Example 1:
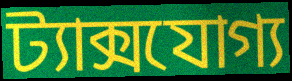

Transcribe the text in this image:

ট্যাক্সযোগ্য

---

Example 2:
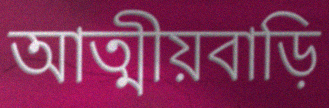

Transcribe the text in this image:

আত্মীয়বাড়ি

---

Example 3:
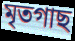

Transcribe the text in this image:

মৃতগাছ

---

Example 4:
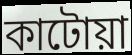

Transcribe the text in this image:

কাটোয়া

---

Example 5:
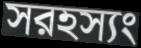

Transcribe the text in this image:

সরহস্যং